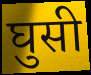
घुसी